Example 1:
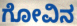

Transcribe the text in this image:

ಗೋವಿನ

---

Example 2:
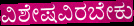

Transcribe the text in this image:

ವಿಶೇಷವಿರಬೇಕು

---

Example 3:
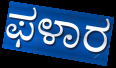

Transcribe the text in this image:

ಫಳಾರ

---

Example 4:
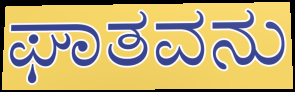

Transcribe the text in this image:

ಘಾತವನು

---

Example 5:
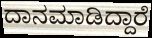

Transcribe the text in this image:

ದಾನಮಾಡಿದ್ದಾರೆ